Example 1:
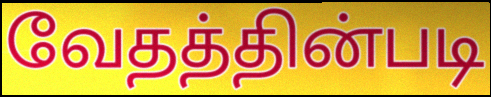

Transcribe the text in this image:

வேதத்தின்படி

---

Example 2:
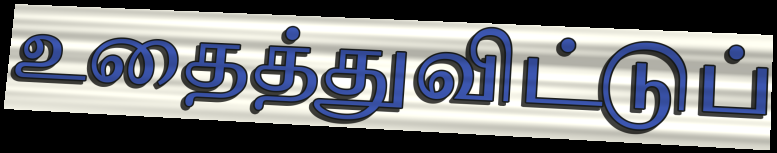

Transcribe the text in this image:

உதைத்துவிட்டுப்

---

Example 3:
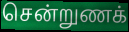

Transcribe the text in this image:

சென்றுணக்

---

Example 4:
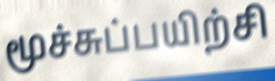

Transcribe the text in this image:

மூச்சுப்பயிற்சி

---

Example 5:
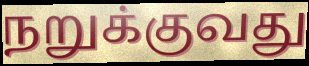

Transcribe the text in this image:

நறுக்குவது